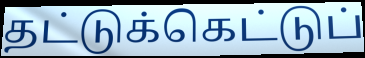
தட்டுக்கெட்டுப்